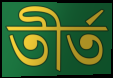
তীর্ত